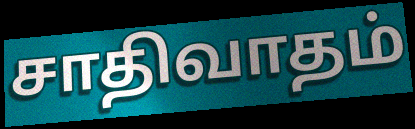
சாதிவாதம்